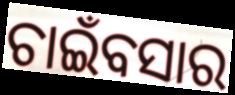
ଚାଇଁବସାର